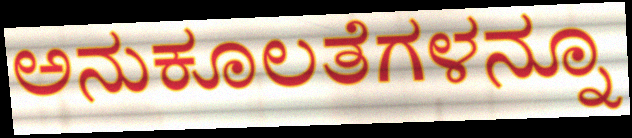
ಅನುಕೂಲತೆಗಳನ್ನೂ